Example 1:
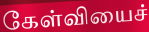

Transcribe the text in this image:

கேள்வியைச்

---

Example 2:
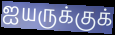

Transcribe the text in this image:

ஐயருக்குக்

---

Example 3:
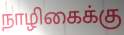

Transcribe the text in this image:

நாழிகைக்கு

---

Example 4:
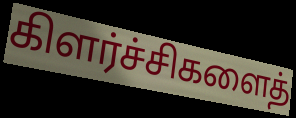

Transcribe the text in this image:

கிளர்ச்சிகளைத்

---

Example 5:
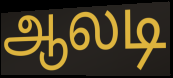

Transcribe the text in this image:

ஆலடி